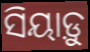
ସିୟାଡ଼ୁ